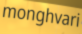
monghvari